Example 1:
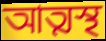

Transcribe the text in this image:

আত্মস্থ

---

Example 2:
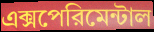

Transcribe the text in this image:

এক্সপেরিমেন্টাল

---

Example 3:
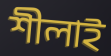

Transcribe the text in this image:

শীলাই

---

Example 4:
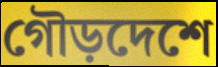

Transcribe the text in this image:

গৌড়দেশে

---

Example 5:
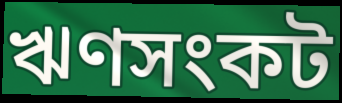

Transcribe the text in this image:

ঋণসংকট